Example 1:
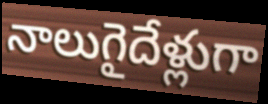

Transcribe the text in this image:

నాలుగైదేళ్లుగా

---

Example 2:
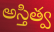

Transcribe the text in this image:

అస్తిత్వ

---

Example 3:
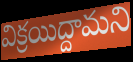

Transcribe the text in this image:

విక్రయిద్దామని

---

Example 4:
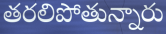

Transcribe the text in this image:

తరలిపోతున్నారు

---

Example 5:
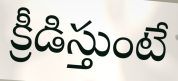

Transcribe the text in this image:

క్రీడిస్తుంటే